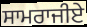
ਸਾਮਰਾਜੀਏ